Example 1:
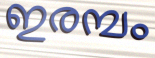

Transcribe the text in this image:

ഇരമ്പം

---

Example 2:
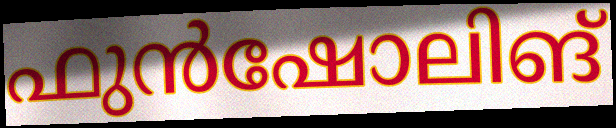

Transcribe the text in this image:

ഫുൻഷോലിങ്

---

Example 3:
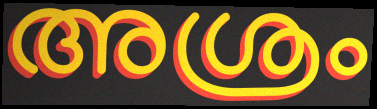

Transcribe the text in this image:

അശ്രം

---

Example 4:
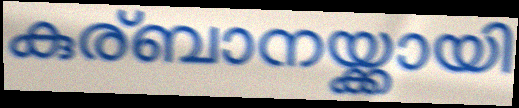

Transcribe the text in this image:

കുര്ബാനയ്ക്കായി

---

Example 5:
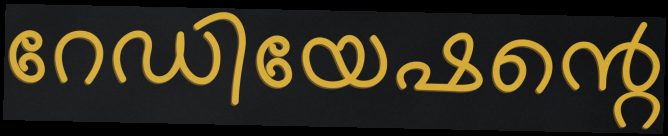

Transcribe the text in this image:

റേഡിയേഷന്റെ